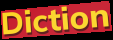
Diction